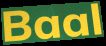
Baal